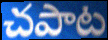
చపాట